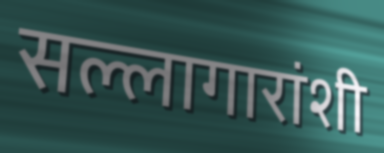
सल्लागारांशी